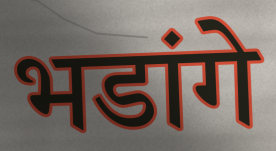
भडांगे